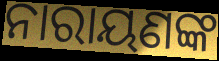
ନାରାୟଣଙ୍କ